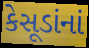
કેસૂડાંનાં